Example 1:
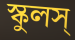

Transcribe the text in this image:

স্কুলস্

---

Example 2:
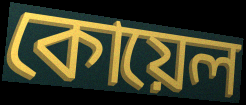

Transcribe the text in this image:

কোয়েল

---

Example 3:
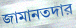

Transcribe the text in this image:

জামানতদার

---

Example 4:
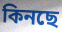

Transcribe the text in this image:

কিনছে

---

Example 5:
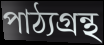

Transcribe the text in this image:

পাঠ্যগ্রন্থ